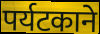
पर्यटकाने